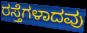
ರಸ್ತೆಗಳಾದವು